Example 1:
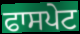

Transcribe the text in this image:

ਫਾਸਪੇਟ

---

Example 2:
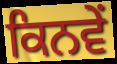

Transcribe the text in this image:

ਕਿਨਵੇਂ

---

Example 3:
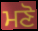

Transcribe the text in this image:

ਮਣੋ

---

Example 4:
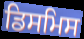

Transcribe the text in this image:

ਡਿਸਮਿਸ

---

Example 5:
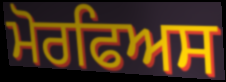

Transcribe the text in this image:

ਮੋਰਫਿਅਸ